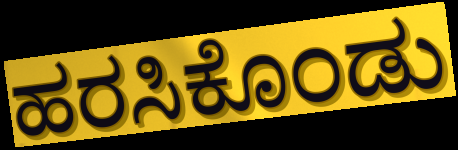
ಹರಸಿಕೊಂಡು